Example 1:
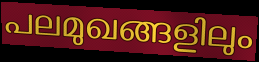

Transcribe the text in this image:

പലമുഖങ്ങളിലും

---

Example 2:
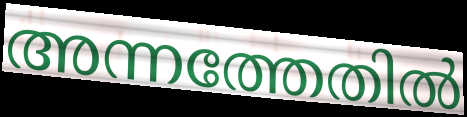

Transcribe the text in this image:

അന്നത്തേതിൽ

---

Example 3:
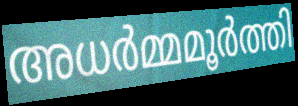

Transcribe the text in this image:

അധർമ്മമൂർത്തി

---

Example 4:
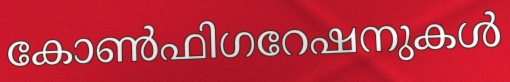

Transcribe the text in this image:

കോൺഫിഗറേഷനുകൾ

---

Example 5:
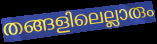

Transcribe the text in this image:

തങ്ങളിലെല്ലാരും